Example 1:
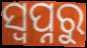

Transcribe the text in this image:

ସ୍ବପ୍ନରୁ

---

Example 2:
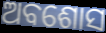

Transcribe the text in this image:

ଅବଶୋସ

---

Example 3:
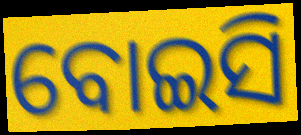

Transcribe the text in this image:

ବୋଇସି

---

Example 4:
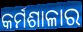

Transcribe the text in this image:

କର୍ମଶାଳାର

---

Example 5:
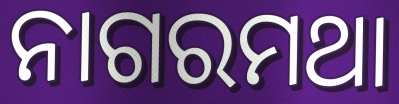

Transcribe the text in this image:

ନାଗରମଥା